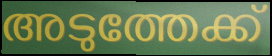
അടുത്തേക്ക്